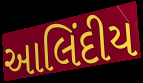
આલિંદીય